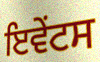
ਇਵੇੰਟਸ